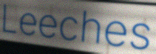
Leeches